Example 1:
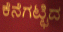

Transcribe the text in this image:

ಕೆನೆಗಟ್ಟಿದ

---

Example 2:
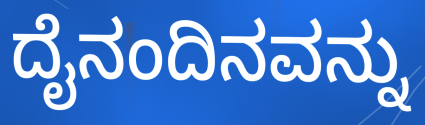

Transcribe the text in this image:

ದೈನಂದಿನವನ್ನು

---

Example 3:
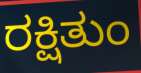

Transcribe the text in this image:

ರಕ್ಷಿತುಂ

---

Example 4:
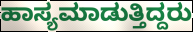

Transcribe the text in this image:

ಹಾಸ್ಯಮಾಡುತ್ತಿದ್ದರು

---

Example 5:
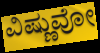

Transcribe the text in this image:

ವಿಷ್ಣುವೋ